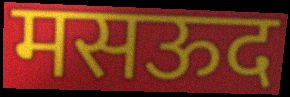
मसऊद